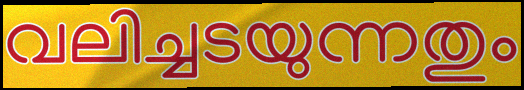
വലിച്ചടയുന്നതും